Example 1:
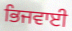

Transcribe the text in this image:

ਭਿਜਵਾਈ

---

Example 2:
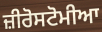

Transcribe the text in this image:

ਜ਼ੀਰੋਸਟੋਮੀਆ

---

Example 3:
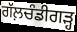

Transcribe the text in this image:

ਗੱਲ਼ਚੰਡੀਗੜ੍ਹ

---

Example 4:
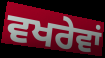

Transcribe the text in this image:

ਵਖਰੇਵਾਂ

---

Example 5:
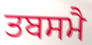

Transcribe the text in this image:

ਤਬਸਮੈ